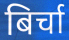
बिर्चा